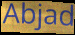
Abjad